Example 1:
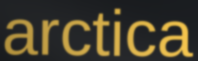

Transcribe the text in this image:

arctica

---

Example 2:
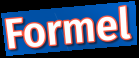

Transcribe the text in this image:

Formel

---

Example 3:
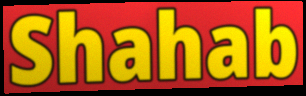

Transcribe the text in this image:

Shahab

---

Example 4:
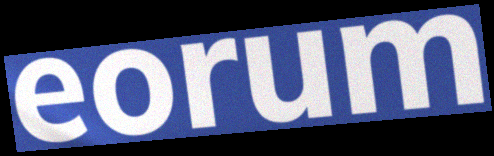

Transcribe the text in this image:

eorum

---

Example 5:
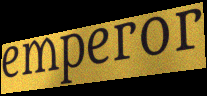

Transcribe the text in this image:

emperor